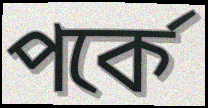
পর্কে